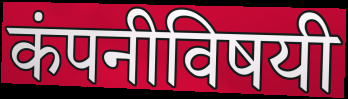
कंपनीविषयी